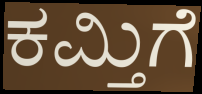
ಕಮ್ತಿಗೆ